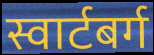
स्वार्टबर्ग